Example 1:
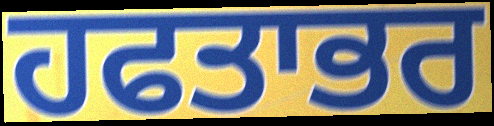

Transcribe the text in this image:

ਹਫਤਾਭਰ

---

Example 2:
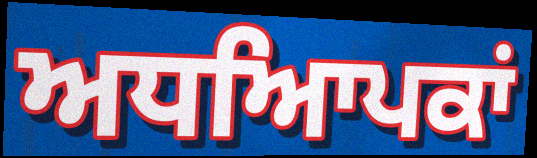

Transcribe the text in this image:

ਅਧਆਿਪਕਾਂ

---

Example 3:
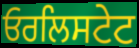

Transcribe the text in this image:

ਓਰਲਿਸਟੇਟ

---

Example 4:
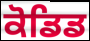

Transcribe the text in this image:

ਕੋਡਿਡ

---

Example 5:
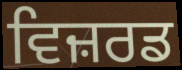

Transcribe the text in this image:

ਵਿਜ਼ਰਡ